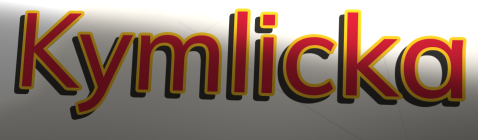
Kymlicka